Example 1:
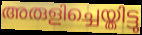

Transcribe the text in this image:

അരുളിച്ചെയ്തിട്ടു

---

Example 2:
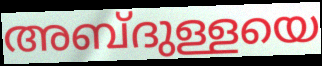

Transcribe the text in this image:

അബ്ദുള്ളയെ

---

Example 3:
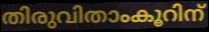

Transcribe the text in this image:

തിരുവിതാംകൂറിന്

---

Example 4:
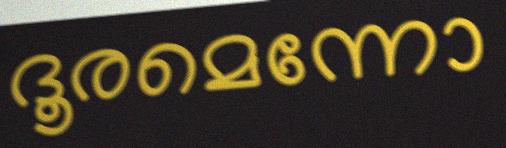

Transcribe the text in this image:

ദൂരമെന്നോ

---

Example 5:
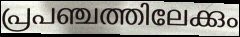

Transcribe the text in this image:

പ്രപഞ്ചത്തിലേക്കും